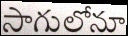
సాగులోనూ